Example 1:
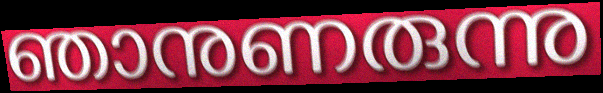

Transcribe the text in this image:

ഞാനുണരുന്നു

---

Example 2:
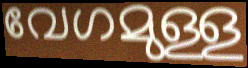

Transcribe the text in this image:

വേഗമുള്ള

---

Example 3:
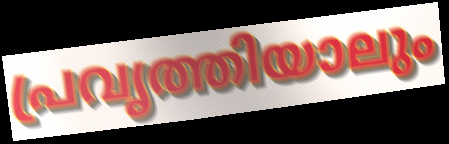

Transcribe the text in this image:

പ്രവൃത്തിയാലും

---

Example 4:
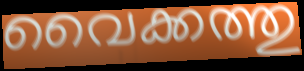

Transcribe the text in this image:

വൈക്കത്തു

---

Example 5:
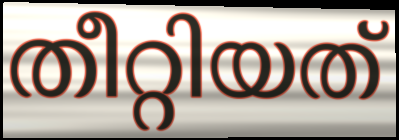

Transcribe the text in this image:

തീറ്റിയത്